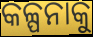
କଳ୍ପନାକୁ